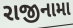
રાજીનામા